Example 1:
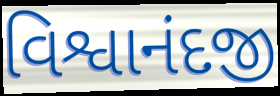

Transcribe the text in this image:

વિશ્વાનંદજી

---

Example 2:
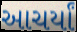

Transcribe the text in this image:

આચર્યાં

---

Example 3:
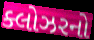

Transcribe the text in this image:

ક્લોઝરનો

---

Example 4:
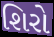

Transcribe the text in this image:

શિરો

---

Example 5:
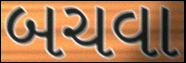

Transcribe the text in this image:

બચવા